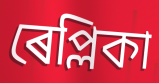
ৰেপ্লিকা